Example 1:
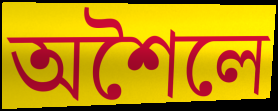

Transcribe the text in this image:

অশৈলে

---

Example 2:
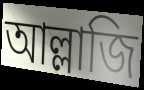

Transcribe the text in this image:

আল্লাজি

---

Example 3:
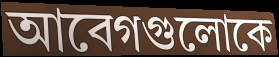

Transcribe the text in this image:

আবেগগুলোকে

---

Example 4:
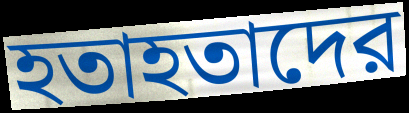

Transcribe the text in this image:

হতাহতাদের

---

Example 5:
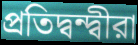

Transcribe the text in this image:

প্রতিদ্বন্দ্বীরা